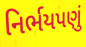
નિર્ભયપણું